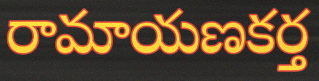
రామాయణకర్త